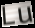
Lu